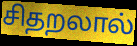
சிதறலால்